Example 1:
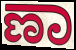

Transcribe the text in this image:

ಣಾ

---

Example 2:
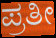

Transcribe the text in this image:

ಪ್ರತೀ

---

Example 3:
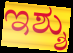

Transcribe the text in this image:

ಇಶ್ಶು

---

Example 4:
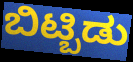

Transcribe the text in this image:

ಬಿಟ್ಬಿಡು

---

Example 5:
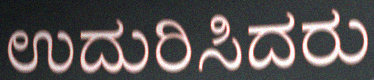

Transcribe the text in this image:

ಉದುರಿಸಿದರು